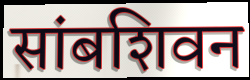
सांबशिवन